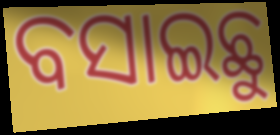
ବସାଇଛୁ